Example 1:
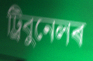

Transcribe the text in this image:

ট্ৰিবুনেলৰ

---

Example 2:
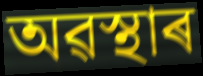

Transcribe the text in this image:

অৱস্থাৰ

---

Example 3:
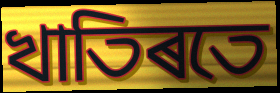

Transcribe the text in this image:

খাতিৰতে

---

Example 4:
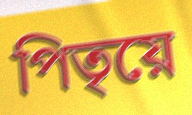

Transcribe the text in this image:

পিতৃয়ে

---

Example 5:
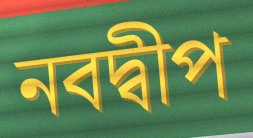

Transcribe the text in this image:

নবদ্বীপ